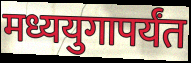
मध्ययुगापर्यंत